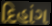
દિહાંગ